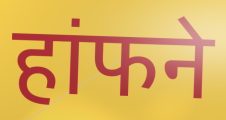
हांफने